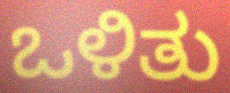
ಒಳಿತು